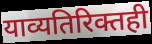
याव्यतिरिक्तही